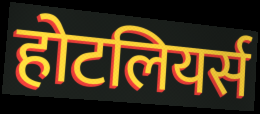
होटलियर्स